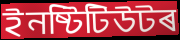
ইনষ্টিটিউটৰ